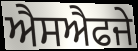
ਐਸਐਫਜੇ